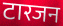
टारजन